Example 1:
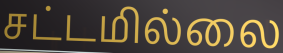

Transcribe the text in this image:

சட்டமில்லை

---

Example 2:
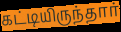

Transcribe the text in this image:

கட்டியிருந்தார்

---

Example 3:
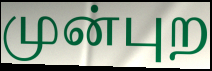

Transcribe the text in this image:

முன்புற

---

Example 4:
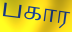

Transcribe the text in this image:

பகார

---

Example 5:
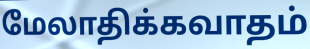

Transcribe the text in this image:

மேலாதிக்கவாதம்